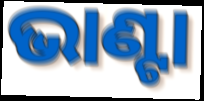
ଭାଣ୍ଟା